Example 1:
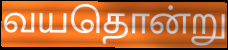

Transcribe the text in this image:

வயதொன்று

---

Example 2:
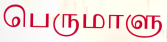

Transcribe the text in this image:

பெருமாளு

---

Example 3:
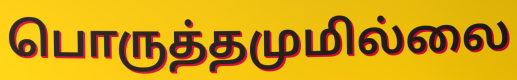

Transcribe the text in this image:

பொருத்தமுமில்லை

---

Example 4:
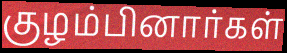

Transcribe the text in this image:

குழம்பினார்கள்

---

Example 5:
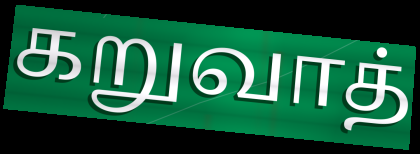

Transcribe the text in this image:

கறுவாத்